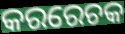
କରରେଚକ